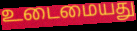
உடைமையது